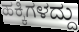
ಹಕ್ಕಿಗಳದ್ದು